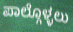
ಪಾಲ್ಗೊಳ್ಳಲು